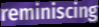
reminiscing